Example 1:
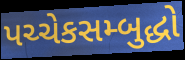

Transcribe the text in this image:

પચ્ચેકસમ્બુદ્ધો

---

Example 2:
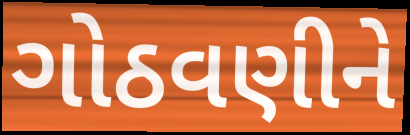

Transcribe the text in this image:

ગોઠવણીને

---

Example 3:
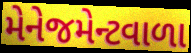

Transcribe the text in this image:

મેનેજમેન્ટવાળા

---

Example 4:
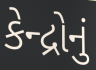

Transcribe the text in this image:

કેન્દ્રોનું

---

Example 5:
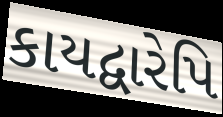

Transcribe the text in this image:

કાયદ્વારેપિ